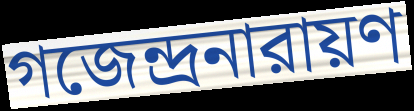
গজেন্দ্রনারায়ণ